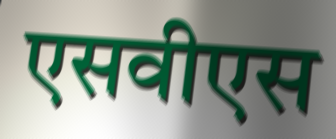
एसवीएस